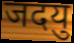
जदयु